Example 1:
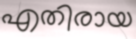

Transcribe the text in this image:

എതിരായ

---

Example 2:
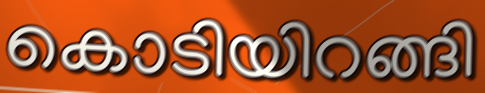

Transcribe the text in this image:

കൊടിയിറങ്ങി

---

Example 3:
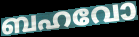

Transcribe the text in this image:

ബഹവോ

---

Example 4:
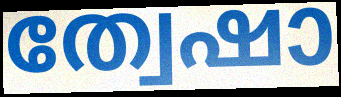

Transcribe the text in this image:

ത്വേഷാ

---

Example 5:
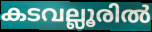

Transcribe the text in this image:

കടവല്ലൂരിൽ